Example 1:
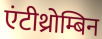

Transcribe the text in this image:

एंटीथ्रोम्बिन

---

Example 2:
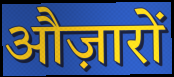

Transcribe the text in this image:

औज़ारों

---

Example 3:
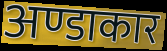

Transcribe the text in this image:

अण्डाकार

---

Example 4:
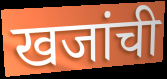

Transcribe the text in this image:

खजांची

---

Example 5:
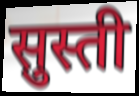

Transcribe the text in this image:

सुस्‍ती